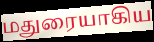
மதுரையாகிய